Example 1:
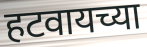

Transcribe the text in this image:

हटवायच्या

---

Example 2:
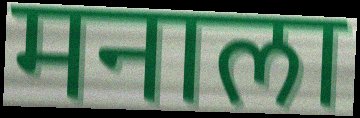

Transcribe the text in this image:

मनाला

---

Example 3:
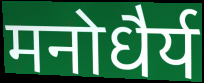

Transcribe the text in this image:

मनोधैर्य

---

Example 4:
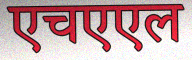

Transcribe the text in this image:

एचएएल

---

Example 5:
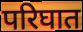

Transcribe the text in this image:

परिघात